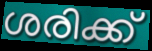
ശരിക്ക്